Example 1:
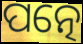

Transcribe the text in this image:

ପତ୍ନେ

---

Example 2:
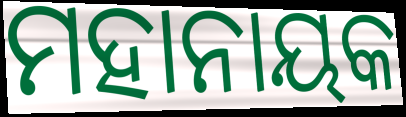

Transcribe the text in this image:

ମହାନାୟକ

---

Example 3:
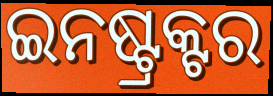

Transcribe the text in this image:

ଇନଷ୍ଟ୍ରକ୍ଟର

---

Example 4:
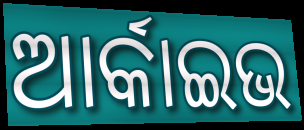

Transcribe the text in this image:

ଆର୍କାଇଭ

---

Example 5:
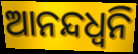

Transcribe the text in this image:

ଆନନ୍ଦଧ୍ଵନି